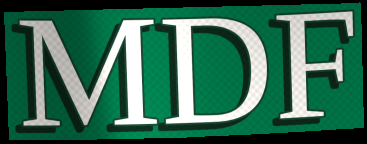
MDF